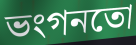
ভংগনতো